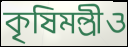
কৃষিমন্ত্রীও